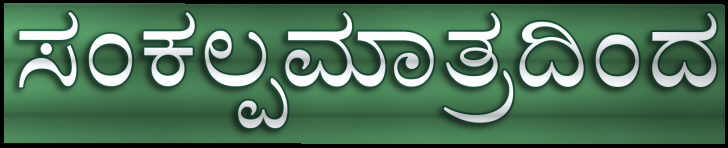
ಸಂಕಲ್ಪಮಾತ್ರದಿಂದ